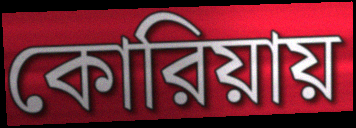
কোরিয়ায়